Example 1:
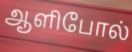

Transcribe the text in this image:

ஆளிபோல்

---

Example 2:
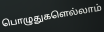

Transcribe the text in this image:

பொழுதுகளெல்லாம்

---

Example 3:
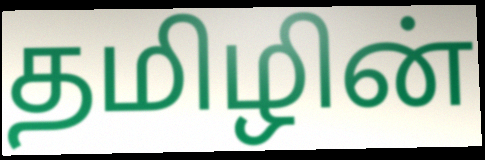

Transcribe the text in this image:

தமிழின்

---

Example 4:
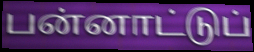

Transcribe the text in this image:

பன்னாட்டுப்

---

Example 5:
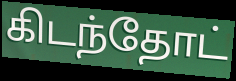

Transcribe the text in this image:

கிடந்தோட்